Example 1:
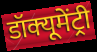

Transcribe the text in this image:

डॉक्‍यूमेंट्री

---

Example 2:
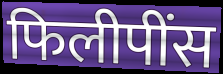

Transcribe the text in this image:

फिलीपींस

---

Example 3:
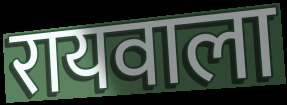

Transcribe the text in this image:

रायवाला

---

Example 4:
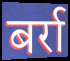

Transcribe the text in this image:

बर्रा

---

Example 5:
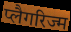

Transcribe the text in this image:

प्लैगरिज्म